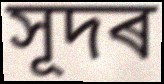
সূদৰ